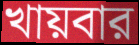
খায়বার